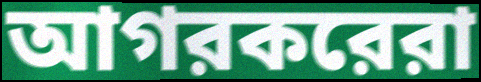
আগরকরেরা